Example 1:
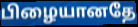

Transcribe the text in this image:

பிழையானதே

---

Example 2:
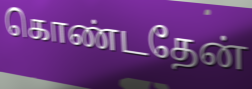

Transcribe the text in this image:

கொண்டதேன்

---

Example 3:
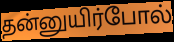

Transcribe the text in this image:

தன்னுயிர்போல்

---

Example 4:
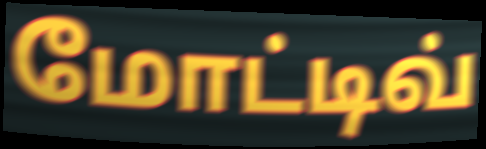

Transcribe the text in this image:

மோட்டிவ்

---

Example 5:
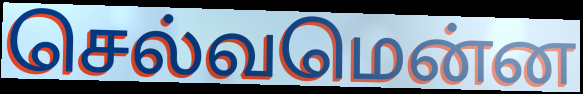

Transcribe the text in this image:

செல்வமென்ன